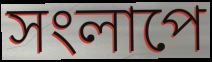
সংলাপে